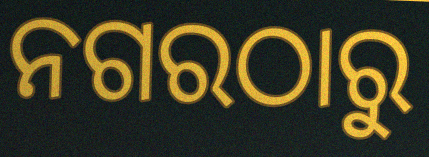
ନଗରଠାରୁ